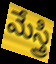
మేస్త్రి